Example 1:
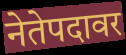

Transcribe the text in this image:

नेतेपदावर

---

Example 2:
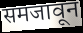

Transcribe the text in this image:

समजावून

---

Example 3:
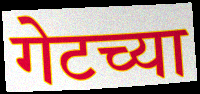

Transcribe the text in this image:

गेटच्या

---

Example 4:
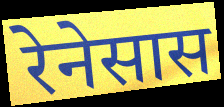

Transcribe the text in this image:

रेनेसास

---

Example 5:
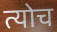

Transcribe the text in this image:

त्योच